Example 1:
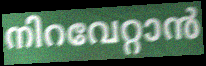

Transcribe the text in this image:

നിറവേറ്റാൻ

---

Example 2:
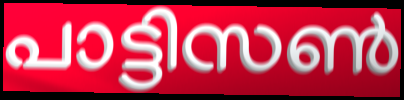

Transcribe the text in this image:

പാട്ടിസൺ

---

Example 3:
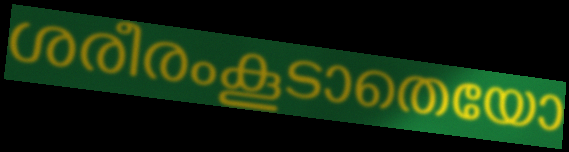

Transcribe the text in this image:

ശരീരംകൂടാതെയോ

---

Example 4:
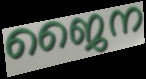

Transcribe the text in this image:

ജൈന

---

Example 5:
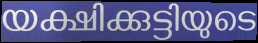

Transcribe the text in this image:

യക്ഷിക്കുട്ടിയുടെ